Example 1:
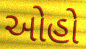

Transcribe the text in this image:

ઓહો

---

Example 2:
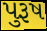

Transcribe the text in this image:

પુરૂષ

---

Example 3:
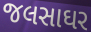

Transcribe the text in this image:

જલસાઘર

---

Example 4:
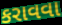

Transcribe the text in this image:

કરાવવા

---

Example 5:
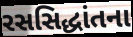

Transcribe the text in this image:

રસસિદ્ધાંતના